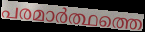
പരമാർത്ഥത്തെ